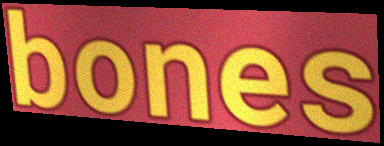
bones